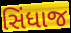
સિંધાજ